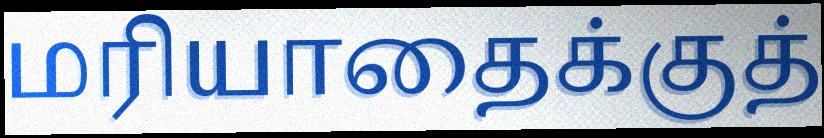
மரியாதைக்குத்